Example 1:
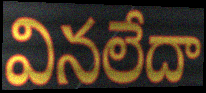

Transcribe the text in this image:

వినలేదా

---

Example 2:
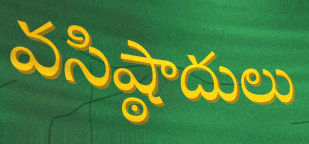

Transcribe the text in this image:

వసిష్ఠాదులు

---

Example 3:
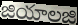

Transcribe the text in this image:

జియాలజి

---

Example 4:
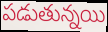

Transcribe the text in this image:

పడుతున్నయి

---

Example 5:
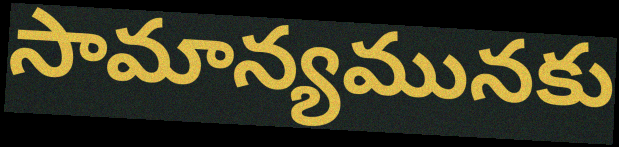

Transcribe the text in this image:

సామాన్యమునకు